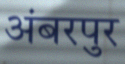
अंबरपुर